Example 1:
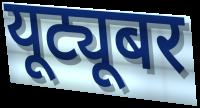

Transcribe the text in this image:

यूट्यूबर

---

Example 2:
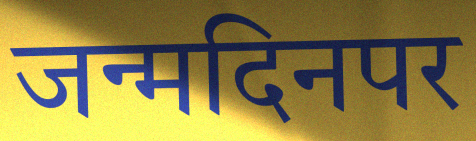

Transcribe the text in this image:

जन्मदिनपर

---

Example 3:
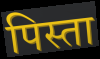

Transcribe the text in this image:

पिस्ता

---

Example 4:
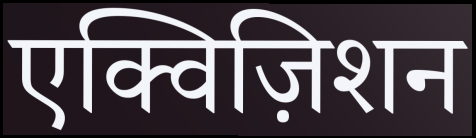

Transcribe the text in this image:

एक्विज़िशन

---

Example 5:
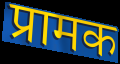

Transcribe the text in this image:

प्रामक